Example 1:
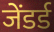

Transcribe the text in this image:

जेंडर्ड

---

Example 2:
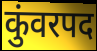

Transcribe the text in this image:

कुंवरपद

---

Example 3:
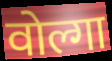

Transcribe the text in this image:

वोल्गा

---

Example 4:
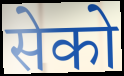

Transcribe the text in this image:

सेको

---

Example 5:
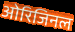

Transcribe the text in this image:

ओरिजिनल